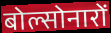
बोल्सोनारों